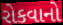
રોકવાનો